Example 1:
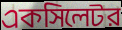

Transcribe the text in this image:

একসিলেটর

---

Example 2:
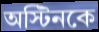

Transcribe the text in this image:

অস্টিনকে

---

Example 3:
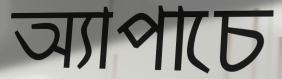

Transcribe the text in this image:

অ্যাপাচে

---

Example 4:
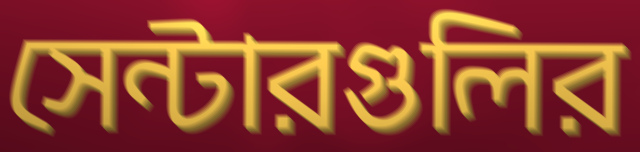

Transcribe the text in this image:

সেন্টারগুলির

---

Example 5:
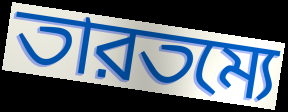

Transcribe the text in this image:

তারতম্যে